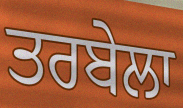
ਤਰਬੇਲਾ